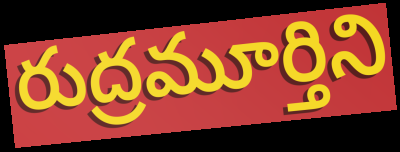
రుద్రమూర్తిని